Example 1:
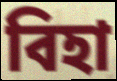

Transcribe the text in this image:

বিহা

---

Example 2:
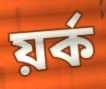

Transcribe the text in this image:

য়ৰ্ক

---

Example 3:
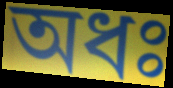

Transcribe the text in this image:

অধঃ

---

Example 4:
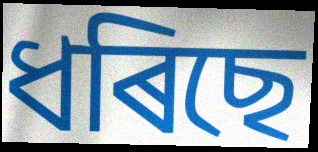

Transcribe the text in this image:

ধৰিছে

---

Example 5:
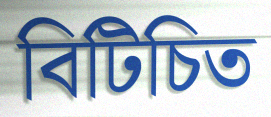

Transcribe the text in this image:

বিটিচিত